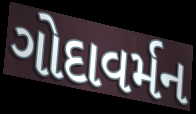
ગોદાવર્મન